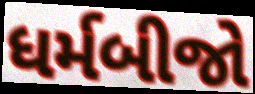
ધર્મબીજો